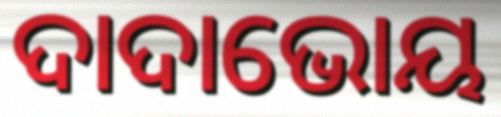
ଦାଦାଭୋୟ